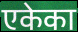
एकेका